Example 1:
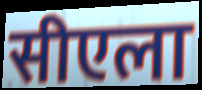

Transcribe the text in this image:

सीएला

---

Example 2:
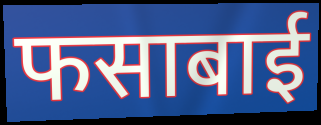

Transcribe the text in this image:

फसाबाई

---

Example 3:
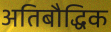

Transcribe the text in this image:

अतिबौद्धिक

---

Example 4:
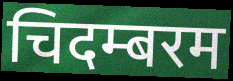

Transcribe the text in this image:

चिदम्बरम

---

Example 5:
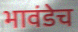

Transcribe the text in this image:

भावंडेच